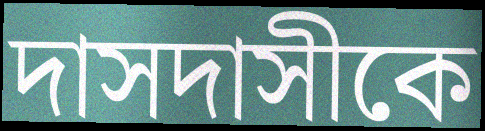
দাসদাসীকে